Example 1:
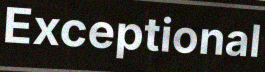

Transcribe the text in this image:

Exceptional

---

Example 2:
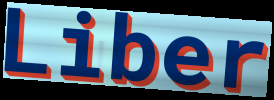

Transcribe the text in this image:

Liber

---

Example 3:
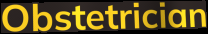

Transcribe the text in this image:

Obstetrician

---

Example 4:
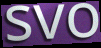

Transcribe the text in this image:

svo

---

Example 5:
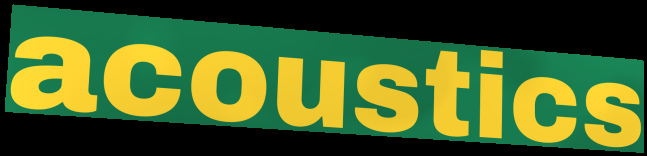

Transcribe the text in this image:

acoustics